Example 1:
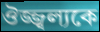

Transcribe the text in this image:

ঔজ্জ্বল্যকে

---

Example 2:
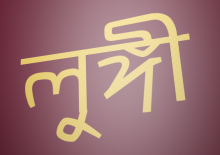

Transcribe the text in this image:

লুঙ্গী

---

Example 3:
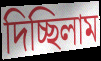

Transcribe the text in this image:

দিচ্ছিলাম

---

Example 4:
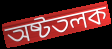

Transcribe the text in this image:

অষ্টতলক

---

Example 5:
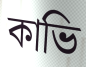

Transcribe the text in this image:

কাভি